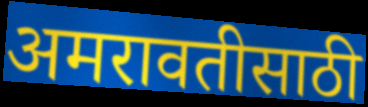
अमरावतीसाठी